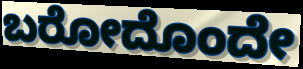
ಬರೋದೊಂದೇ